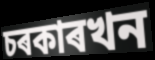
চৰকাৰখন